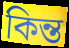
কিন্ত